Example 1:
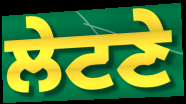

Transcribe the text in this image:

ਲੇਟਣੇ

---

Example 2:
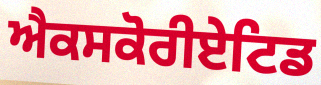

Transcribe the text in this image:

ਐਕਸਕੋਰੀਏਟਿਡ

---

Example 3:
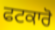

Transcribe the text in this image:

ਫਟਕਾਰੋ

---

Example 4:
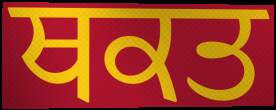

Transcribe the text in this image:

ਥਕਤ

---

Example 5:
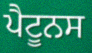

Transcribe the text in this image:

ਪੈਟੂਨਸ